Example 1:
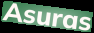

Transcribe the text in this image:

Asuras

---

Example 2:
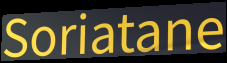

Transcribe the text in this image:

Soriatane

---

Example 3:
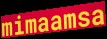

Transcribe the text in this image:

mimaamsa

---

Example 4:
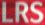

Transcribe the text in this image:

LRS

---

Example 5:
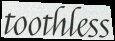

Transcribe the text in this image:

toothless